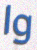
lg